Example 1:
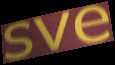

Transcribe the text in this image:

sve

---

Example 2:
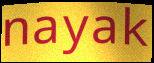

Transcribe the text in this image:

nayak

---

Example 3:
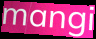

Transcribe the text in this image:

mangi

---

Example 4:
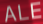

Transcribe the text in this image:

ALE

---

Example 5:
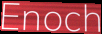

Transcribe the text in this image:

Enoch